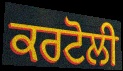
ਕਰਟੋਲੀ